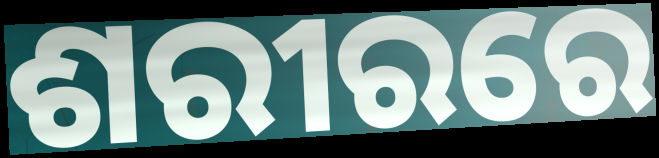
ଶରୀରରେ